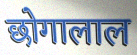
छोगालाल